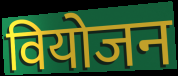
वियोजन